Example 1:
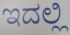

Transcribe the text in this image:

ಇದಲ್ಲಿ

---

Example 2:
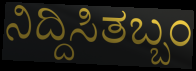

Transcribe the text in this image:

ನಿದ್ದಿಸಿತಬ್ಬಂ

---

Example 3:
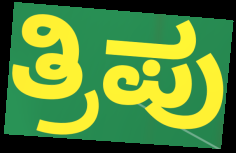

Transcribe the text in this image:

ತ್ರಿಪು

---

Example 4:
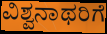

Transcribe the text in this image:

ವಿಶ್ವನಾಥರಿಗೆ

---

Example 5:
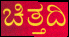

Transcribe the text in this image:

ಚಿತ್ತದಿ